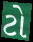
ટો